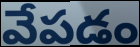
వేపడం